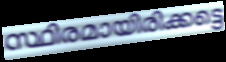
സ്ഥിരമായിരിക്കട്ടെ